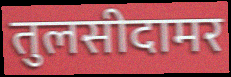
तुलसीदामर